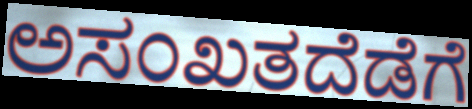
ಅಸಂಖತದೆಡೆಗೆ